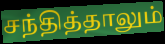
சந்தித்தாலும்